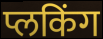
प्लकिंग